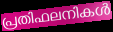
പ്രതിഫലനികൾ